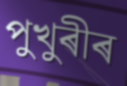
পুখুৰীৰ